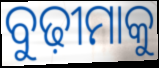
ବୁଢ଼ୀମାକୁ